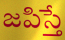
జపిస్తే